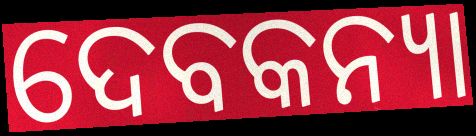
ଦେବକନ୍ୟା